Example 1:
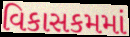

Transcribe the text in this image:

વિકાસકમમાં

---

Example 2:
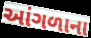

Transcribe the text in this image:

આંગળાના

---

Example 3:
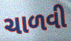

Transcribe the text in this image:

ચાળવી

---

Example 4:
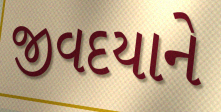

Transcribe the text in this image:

જીવદયાને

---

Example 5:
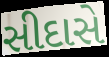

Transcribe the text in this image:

સીદાસે